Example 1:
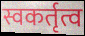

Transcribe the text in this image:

स्वकर्तृत्व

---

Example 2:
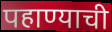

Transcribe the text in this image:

पहाण्याची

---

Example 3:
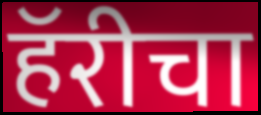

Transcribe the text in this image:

हॅरीचा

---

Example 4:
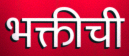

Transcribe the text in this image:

भक्तीची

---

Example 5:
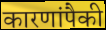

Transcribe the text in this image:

कारणांपैकी